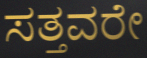
ಸತ್ತವರೇ